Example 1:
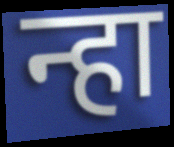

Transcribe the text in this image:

न्हा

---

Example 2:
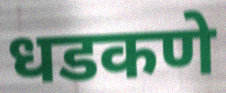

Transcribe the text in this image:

धडकणे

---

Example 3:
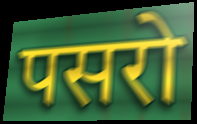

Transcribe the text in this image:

पसरो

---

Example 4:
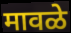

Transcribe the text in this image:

मावळे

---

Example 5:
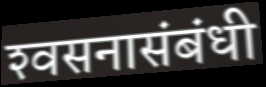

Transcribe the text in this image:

श्वसनासंबंधी